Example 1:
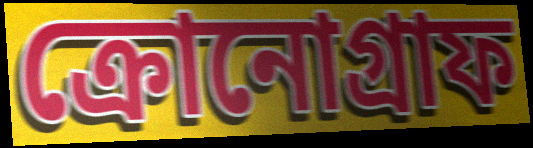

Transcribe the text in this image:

ক্রোনোগ্রাফ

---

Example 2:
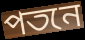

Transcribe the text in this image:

পতনে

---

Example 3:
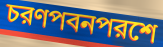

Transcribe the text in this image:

চরণপবনপরশে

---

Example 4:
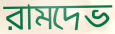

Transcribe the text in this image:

রামদেভ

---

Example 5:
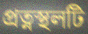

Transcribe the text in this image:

প্রত্নস্থলটি